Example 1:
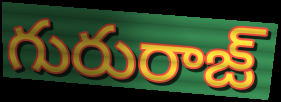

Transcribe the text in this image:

గురురాజ్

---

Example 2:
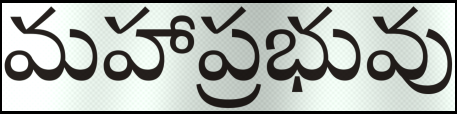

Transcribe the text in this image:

మహాప్రభువు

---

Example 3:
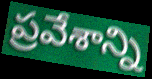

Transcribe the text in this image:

ప్రవేశాన్ని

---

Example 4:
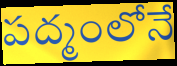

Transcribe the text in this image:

పద్మంలోనే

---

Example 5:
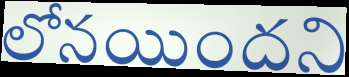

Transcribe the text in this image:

లోనయిందని